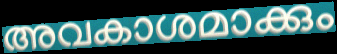
അവകാശമാക്കും